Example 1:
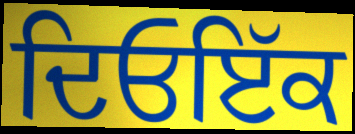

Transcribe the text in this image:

ਦਿਓਇੱਕ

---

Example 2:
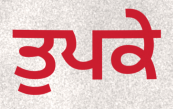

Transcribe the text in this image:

ਤੁਪਕੇ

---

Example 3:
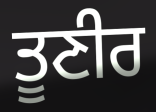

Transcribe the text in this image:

ਤੂਣੀਰ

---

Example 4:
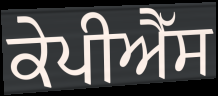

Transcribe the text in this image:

ਕੇਪੀਐੱਸ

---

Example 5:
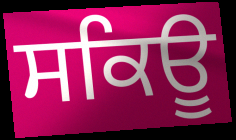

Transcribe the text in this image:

ਸਕਿਊ